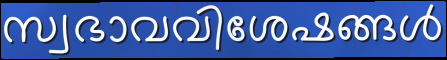
സ്വഭാവവിശേഷങ്ങൾ